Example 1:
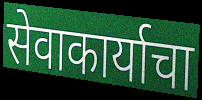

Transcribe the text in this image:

सेवाकार्याचा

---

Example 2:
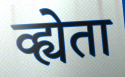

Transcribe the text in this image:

व्ह्येता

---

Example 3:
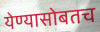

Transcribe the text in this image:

येण्यासोबतच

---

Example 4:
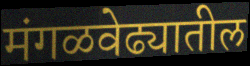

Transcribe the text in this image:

मंगळवेढ्यातील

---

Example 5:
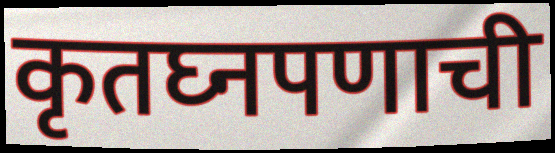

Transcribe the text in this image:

कृतघ्नपणाची